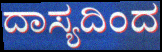
ದಾಸ್ಯದಿಂದ